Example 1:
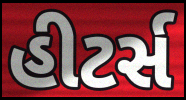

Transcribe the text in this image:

હીટર્સ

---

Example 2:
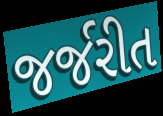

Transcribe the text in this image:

જર્જરીત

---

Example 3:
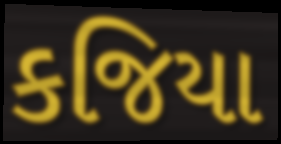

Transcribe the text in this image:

કજિયા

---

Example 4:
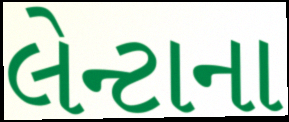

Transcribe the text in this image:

લેન્ટાના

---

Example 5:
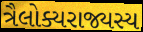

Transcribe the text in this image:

ત્રૈલોક્યરાજ્યસ્ય